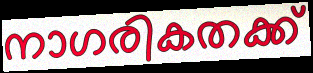
നാഗരികതക്ക്